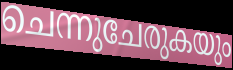
ചെന്നുചേരുകയും